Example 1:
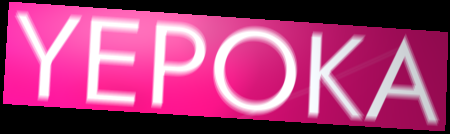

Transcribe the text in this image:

YEPOKA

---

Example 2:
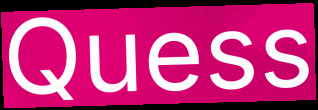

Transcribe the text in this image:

Quess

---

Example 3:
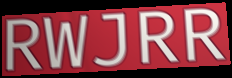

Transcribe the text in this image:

RWJRR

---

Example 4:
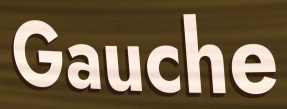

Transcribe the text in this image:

Gauche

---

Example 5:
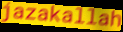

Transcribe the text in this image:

jazakallah